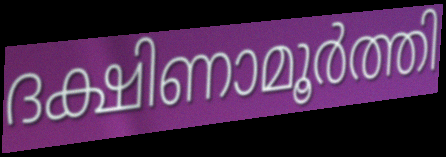
ദക്ഷിണാമൂർത്തി